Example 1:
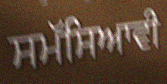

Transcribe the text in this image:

ਸਮੱਸਿਆਵੀ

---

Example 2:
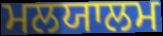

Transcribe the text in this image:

ਮਲਯਾਲਮ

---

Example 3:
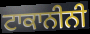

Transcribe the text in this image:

ਟਾਕਾਨੀਨੀ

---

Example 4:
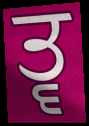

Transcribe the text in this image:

ਤ੍ਵ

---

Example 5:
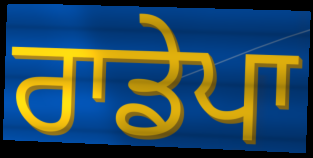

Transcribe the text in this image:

ਰਾਡੇਪਾ